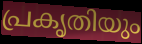
പ്രകൃതിയും